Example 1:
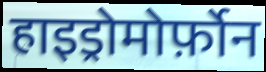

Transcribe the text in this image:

हाइड्रोमोर्फ़ोन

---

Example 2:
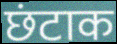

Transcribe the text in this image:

छंटाक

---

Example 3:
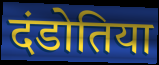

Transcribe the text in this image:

दंडोतिया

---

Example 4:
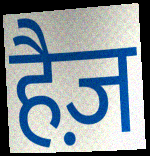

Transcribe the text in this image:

हैज़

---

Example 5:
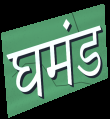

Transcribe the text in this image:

घमंड